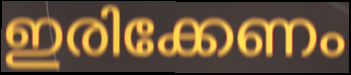
ഇരിക്കേണം